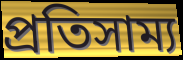
প্রতিসাম্য